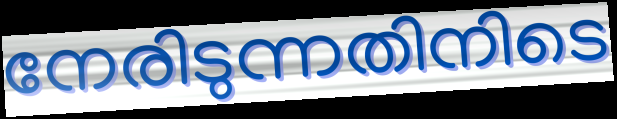
നേരിടുന്നതിനിടെ